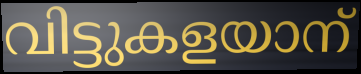
വിട്ടുകളയാന്